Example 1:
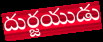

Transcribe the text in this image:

దుర్జయుడు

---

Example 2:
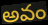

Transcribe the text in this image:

అవం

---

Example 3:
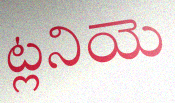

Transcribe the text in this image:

ట్లనియె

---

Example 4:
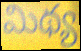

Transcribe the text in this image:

మిథ్య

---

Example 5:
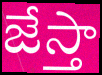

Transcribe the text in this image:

జేస్తా